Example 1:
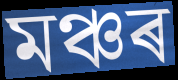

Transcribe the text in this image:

মঞ্চৰ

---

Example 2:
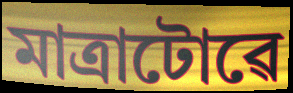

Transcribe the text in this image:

মাত্ৰাটোৱে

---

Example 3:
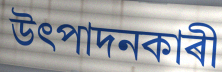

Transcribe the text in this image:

উৎপাদনকাৰী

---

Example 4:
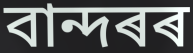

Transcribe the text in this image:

বান্দৰৰ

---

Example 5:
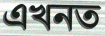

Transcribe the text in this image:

এখনত